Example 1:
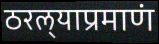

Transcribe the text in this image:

ठरल्याप्रमाणं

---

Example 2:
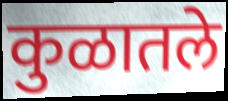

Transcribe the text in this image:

कुळातले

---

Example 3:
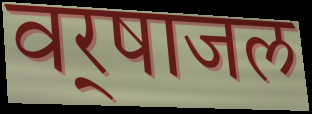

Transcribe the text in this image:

वर्षाजल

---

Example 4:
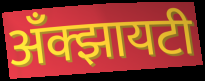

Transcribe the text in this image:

अँक्झायटी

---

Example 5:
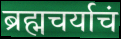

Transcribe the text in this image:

ब्रह्मचर्याचं